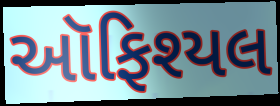
ઑફિશ્યલ